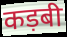
कड़बी